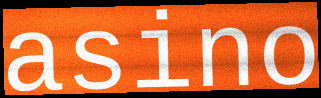
asino